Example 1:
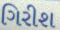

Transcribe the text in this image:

ગિરીશ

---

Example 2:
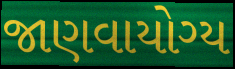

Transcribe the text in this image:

જાણવાયોગ્ય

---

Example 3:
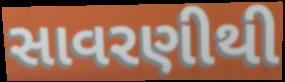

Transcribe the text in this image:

સાવરણીથી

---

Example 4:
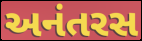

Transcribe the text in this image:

અનંતરસ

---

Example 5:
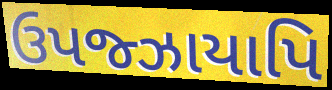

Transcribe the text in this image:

ઉપજ્ઝાયાપિ